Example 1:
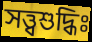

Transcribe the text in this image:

সত্ত্বশুদ্ধিঃ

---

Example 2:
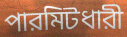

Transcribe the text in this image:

পারমিটধারী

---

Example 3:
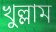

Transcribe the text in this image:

খুল্লাম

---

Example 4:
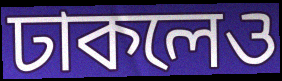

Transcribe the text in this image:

ঢাকলেও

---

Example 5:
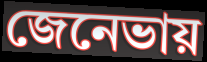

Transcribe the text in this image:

জেনেভায়